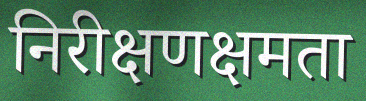
निरीक्षणक्षमता